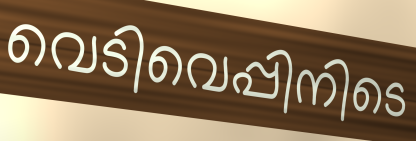
വെടിവെപ്പിനിടെ